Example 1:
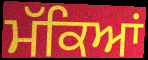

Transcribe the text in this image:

ਮੱਕਿਆਂ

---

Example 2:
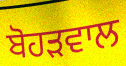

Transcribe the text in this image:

ਬੋਹੜਵਾਲ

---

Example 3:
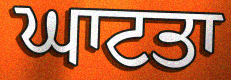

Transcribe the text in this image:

ਘਾਟਤਾ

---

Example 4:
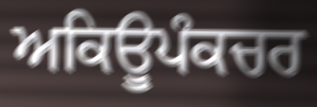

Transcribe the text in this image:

ਅਕਿਊਪੰਕਚਰ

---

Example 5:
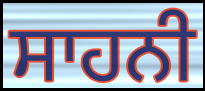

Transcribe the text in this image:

ਸਾਹਨੀ